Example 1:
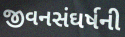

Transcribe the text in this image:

જીવનસંઘર્ષની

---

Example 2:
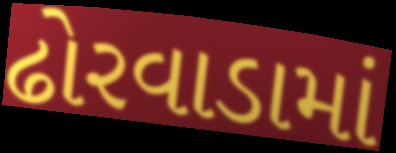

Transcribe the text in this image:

ઢોરવાડામાં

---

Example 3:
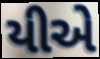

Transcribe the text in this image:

યીએ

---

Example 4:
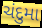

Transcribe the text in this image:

ચંદુમા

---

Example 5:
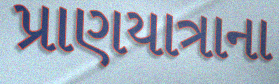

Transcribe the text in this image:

પ્રાણયાત્રાના